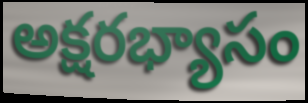
అక్షరభ్యాసం